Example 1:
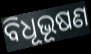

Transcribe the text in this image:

ବିଧୂଭୂଷଣ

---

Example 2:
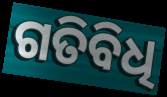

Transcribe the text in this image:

ଗତିବିଧି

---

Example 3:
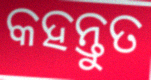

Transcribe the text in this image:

କହନ୍ତୁତ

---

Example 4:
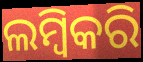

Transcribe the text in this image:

ଲମ୍ବିକରି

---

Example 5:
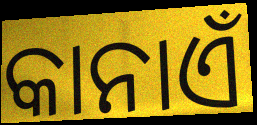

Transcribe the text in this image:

କାନାଏଁ